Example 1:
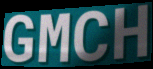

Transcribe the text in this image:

GMCH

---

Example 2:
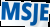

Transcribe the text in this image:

MSJE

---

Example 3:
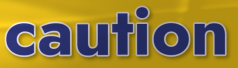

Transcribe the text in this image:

caution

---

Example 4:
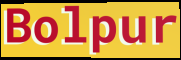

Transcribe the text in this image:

Bolpur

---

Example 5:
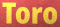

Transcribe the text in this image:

Toro